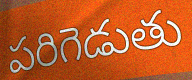
పరిగెడుతు